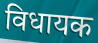
विधायक